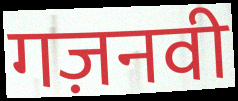
गज़नवी